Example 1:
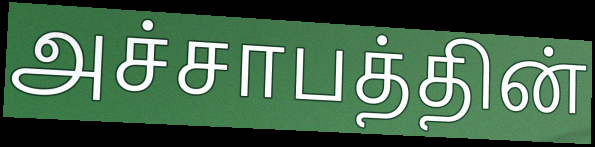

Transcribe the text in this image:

அச்சாபத்தின்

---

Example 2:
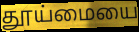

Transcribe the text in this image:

தூய்மையை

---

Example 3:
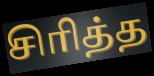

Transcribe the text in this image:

சிரித்த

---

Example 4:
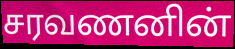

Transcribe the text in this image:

சரவணனின்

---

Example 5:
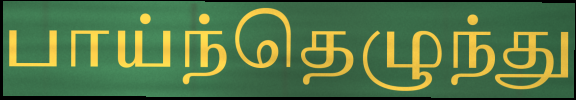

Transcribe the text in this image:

பாய்ந்தெழுந்து